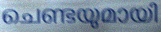
ചെണ്ടയുമായി